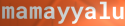
mamayyalu